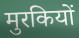
मुरकियों